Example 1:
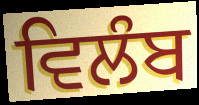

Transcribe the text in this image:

ਵਿਲੰਬ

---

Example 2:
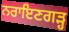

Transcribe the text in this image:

ਨਰਾਇਣਗੜ੍ਹ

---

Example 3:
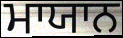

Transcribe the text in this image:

ਮਾਯਾਨ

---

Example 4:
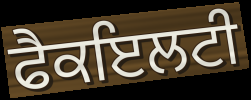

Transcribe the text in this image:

ਫੈਕਇਲਟੀ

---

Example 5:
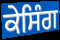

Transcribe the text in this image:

ਕੇਸਿੰਗ